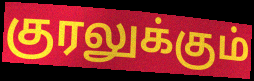
குரலுக்கும்